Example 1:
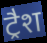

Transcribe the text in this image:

ट्रैश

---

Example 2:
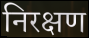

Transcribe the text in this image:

निरक्षण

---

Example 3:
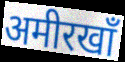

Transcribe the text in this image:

अमीरखाँ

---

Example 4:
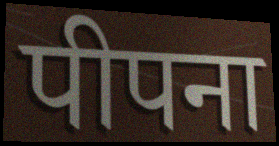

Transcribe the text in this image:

पीपना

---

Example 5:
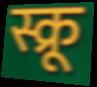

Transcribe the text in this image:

स्क्रू